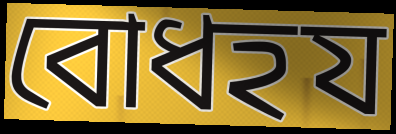
বোধহয